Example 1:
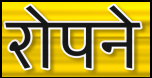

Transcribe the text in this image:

रोपने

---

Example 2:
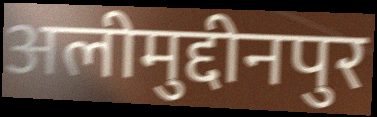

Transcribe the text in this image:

अलीमुद्दीनपुर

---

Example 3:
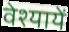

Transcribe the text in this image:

वेश्यायें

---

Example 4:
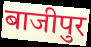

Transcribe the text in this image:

बाजीपुर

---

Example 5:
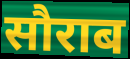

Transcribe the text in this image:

सौराब